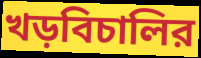
খড়বিচালির